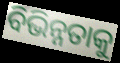
ବିଭିନ୍ନତାକୁ